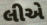
લીએ